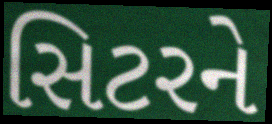
સિટરને